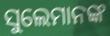
ସୁଲେମାନଙ୍କ